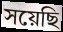
সয়েছি